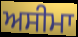
ਅਸੀਮਾ